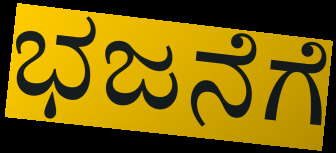
ಭಜನೆಗೆ